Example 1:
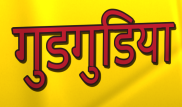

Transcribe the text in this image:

गुडगुडिया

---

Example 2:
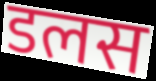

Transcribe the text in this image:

डलस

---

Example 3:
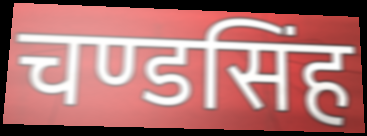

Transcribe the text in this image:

चण्डसिंह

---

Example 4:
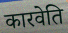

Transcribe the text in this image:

कारवेति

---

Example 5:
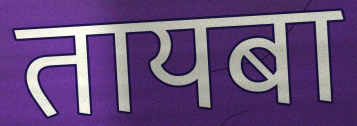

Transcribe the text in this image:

तायबा